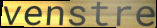
venstre